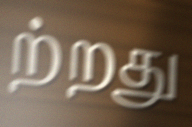
ற்றது